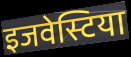
इजवेस्टिया